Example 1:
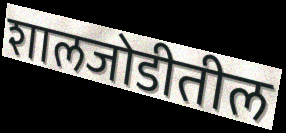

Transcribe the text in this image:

शालजोडीतील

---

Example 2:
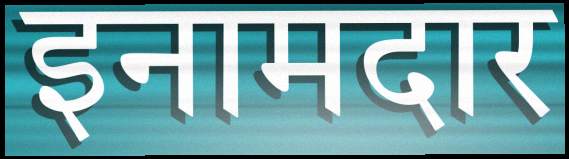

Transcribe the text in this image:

इनामदार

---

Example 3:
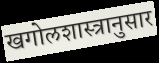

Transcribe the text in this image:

खगोलशास्त्रानुसार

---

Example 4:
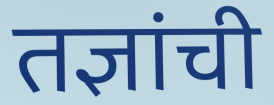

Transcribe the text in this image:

तज्ञांची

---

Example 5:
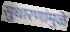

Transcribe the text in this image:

सुधारणांमुळे